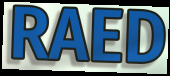
RAED